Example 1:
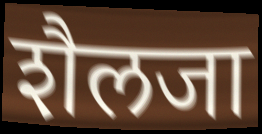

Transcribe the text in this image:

शैलजा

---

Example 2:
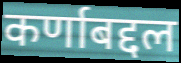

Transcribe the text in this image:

कर्णाबद्दल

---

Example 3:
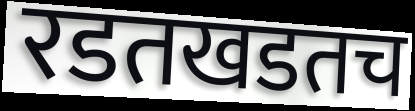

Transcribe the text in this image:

रडतखडतच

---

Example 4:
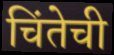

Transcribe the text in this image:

चिंतेची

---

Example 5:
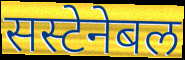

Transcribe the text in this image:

सस्टेनेबल